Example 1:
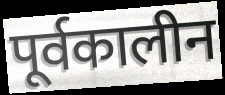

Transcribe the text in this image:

पूर्वकालीन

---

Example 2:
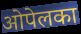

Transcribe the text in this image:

ओपेलका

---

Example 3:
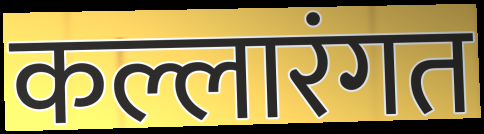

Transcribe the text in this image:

कल्लारंगत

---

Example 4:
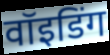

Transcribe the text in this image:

वॉइडिंग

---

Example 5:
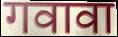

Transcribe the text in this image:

गवावा